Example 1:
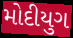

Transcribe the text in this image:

મોદીયુગ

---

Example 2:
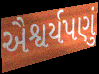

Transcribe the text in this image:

ઐશ્વર્યપણું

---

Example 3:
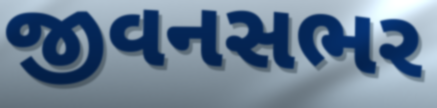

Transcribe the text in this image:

જીવનસભર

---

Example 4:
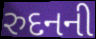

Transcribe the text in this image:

રુદનની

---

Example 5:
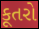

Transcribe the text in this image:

કૂતરો